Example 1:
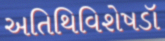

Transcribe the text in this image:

અતિથિવિશેષડૉ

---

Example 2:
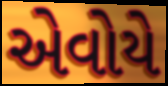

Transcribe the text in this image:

એવોયે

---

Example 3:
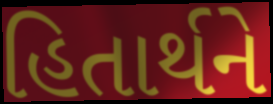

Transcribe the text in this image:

હિતાર્થને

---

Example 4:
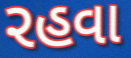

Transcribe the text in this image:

રહવા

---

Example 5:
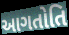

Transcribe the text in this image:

આગતોતિ